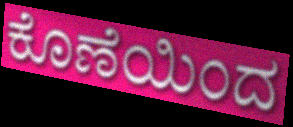
ಕೊಣೆಯಿಂದ